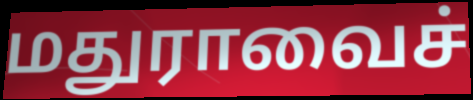
மதுராவைச்